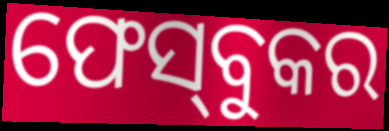
ଫେସ୍‌ବୁକର